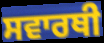
ਸਵਾਰਥੀ